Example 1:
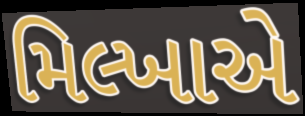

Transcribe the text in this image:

મિલ્ખાએ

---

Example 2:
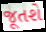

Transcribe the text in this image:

જૂતશે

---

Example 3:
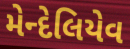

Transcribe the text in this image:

મેન્દેલિયેવ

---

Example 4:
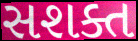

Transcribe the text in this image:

સશક્ત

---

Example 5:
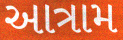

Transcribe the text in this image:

આત્રામ